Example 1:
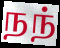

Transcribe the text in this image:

நந்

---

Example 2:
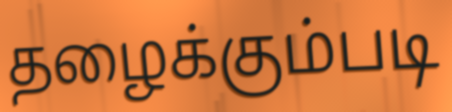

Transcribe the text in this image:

தழைக்கும்படி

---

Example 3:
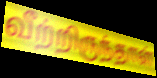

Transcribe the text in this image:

வீற்றிருந்தாள்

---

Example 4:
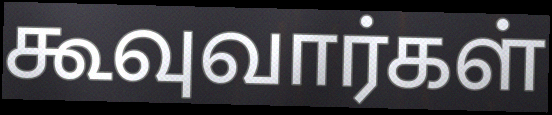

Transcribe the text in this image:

கூவுவார்கள்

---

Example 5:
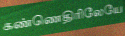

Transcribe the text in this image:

கண்ணெதிரிலேயே